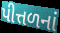
પીત્તળનાં